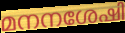
മനനശേഷി